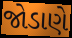
જોડાણે